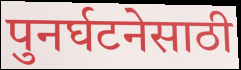
पुनर्घटनेसाठी